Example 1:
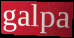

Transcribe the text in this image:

galpa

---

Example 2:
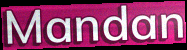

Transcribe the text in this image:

Mandan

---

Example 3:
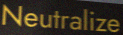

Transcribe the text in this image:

Neutralize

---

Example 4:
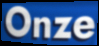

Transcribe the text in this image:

Onze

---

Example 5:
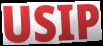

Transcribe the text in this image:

USIP